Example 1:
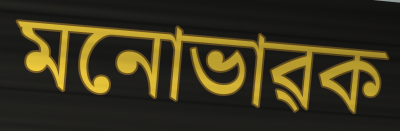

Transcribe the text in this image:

মনোভাৱক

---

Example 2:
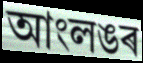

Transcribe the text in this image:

আংলঙৰ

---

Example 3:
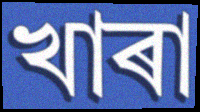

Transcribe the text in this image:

খাৰা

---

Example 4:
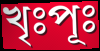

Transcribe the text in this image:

খৃঃপূঃ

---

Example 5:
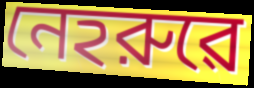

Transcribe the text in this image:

নেহৰুৱে